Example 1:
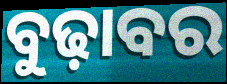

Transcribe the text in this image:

ବୁଢ଼ାବର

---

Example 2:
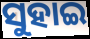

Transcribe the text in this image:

ସୁହାଇ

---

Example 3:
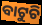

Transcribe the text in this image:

ବାଟୁଚି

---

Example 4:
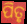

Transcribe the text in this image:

ପିତୃ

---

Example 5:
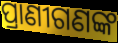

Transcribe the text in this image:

ପ୍ରାଣୀଗଣଙ୍କ